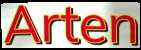
Arten